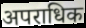
अपराधिक